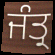
ਜੰਤ੍ਰ